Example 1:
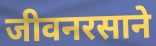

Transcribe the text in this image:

जीवनरसाने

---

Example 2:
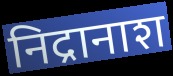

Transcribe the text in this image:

निद्रानाश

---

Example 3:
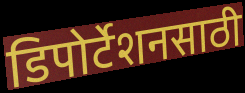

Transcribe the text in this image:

डिपोर्टेशनसाठी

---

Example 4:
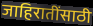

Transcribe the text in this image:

जाहिरातींसाठी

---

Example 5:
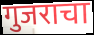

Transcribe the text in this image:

गुजराचा